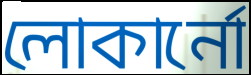
লোকার্নো